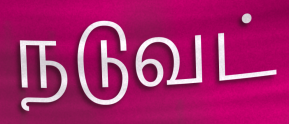
நடுவட்